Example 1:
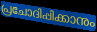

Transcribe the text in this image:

പ്രചോദിപ്പിക്കാനും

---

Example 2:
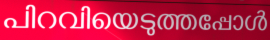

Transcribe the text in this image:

പിറവിയെടുത്തപ്പോൾ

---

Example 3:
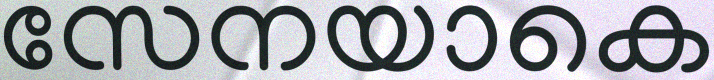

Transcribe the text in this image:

സേനയാകെ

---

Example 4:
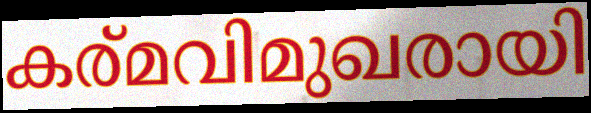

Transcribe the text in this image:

കര്മവിമുഖരായി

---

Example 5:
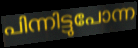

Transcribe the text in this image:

പിന്നിട്ടുപോന്ന